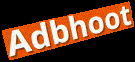
Adbhoot